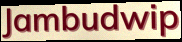
Jambudwip